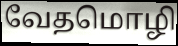
வேதமொழி